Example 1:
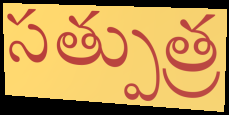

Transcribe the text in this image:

సత్పుత్ర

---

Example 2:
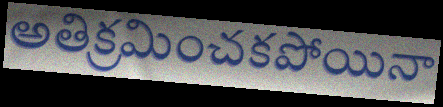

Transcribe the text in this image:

అతిక్రమించకపోయినా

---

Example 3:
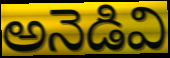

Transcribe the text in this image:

అనెడివి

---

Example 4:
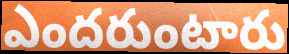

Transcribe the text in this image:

ఎందరుంటారు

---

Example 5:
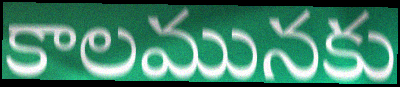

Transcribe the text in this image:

కాలమునకు